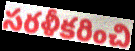
సరళీకరించి